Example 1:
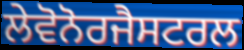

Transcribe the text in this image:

ਲੇਵੋਨੋਰਜੈਸਟਰਲ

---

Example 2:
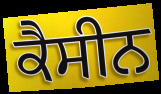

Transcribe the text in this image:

ਕੈਸੀਨ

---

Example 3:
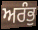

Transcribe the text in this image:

ਅਰੰਭੁ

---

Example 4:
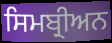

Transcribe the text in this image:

ਸਿਮਬ੍ਰੀਅਨ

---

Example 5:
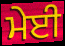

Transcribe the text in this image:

ਮੇਈ